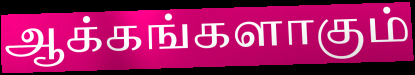
ஆக்கங்களாகும்